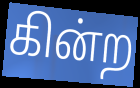
கின்ற